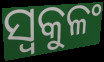
ସ୍ୱକୁଳଂ